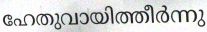
ഹേതുവായിത്തീർന്നു